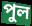
পুল